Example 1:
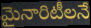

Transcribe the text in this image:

మైనారిటీలనే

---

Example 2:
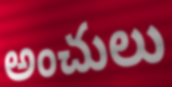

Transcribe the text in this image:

అంచులు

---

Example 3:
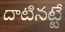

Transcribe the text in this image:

దాటినట్టే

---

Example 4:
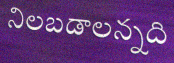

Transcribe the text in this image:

నిలబడాలన్నది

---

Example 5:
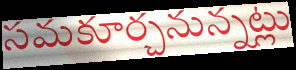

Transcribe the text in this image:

సమకూర్చనున్నట్లు